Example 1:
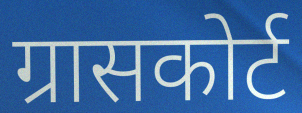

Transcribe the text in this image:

ग्रासकोर्ट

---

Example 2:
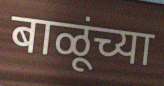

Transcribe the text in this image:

बाळूंच्या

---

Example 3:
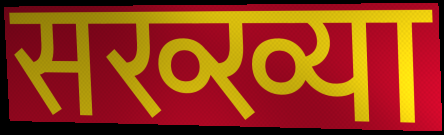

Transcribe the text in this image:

सख्ख्या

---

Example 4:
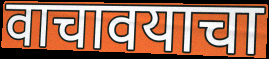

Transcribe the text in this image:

वाचावयाचा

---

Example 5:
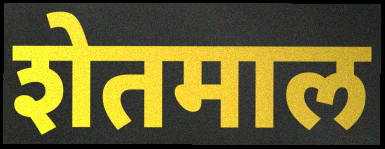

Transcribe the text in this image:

शेतमाल